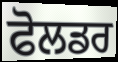
ਫੋਲਡਰ